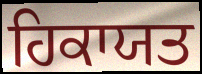
ਹਿਕਾਯਤ